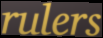
rulers